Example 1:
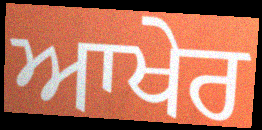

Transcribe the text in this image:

ਆਖੇਰ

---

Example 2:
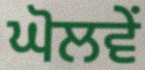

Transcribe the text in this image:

ਘੋਲਵੇਂ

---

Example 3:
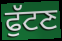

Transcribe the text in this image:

ਫੁੱਟਣ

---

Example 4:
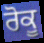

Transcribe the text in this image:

ਰੋਕੂ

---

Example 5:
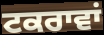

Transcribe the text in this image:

ਟਕਰਾਵਾਂ